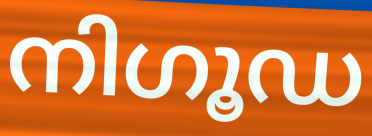
നിഗൂഡ